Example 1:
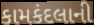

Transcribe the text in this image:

કામકંદલાની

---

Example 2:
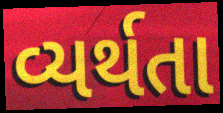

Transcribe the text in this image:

વ્યર્થતા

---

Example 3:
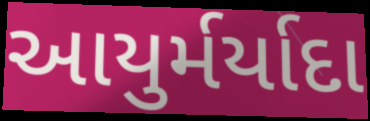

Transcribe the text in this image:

આયુર્મર્યાદા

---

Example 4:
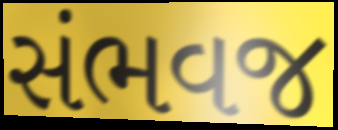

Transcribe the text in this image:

સંભવજ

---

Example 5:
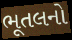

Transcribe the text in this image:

ભૂતલનો